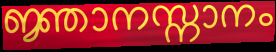
ജ്ഞാനസ്നാനം